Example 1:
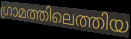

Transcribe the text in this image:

ഗ്രാമത്തിലെത്തിയ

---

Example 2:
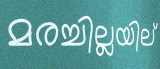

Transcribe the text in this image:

മരച്ചില്ലയില്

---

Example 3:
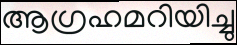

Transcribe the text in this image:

ആഗ്രഹമറിയിച്ചു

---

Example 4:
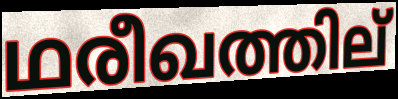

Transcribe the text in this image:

ഥരീഖത്തില്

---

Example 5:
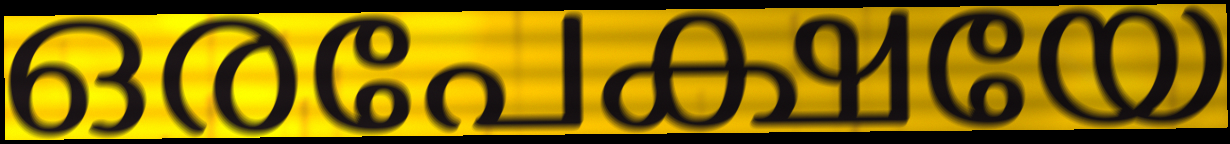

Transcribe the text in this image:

ഒരപേക്ഷയേ